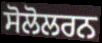
ਸੋਲੋਲਰਨ